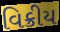
વિક્રીય